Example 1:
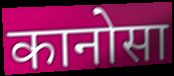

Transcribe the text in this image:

कानोसा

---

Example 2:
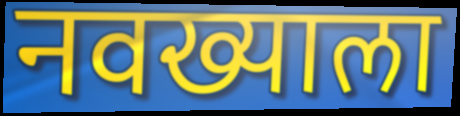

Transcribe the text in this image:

नवख्याला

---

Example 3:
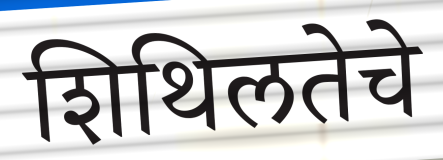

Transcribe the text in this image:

शिथिलतेचे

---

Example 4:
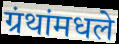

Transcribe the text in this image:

ग्रंथांमधले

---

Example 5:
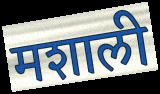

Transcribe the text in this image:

मशाली